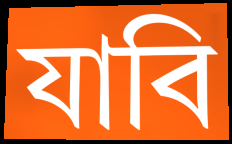
যাবি